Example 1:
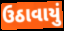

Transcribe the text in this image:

ઉઠાવાયું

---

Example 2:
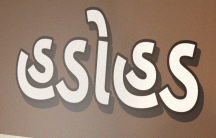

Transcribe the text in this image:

હડોહડ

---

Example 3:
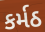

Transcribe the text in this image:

કર્મઠ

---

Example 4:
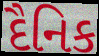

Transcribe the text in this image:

દૈનિક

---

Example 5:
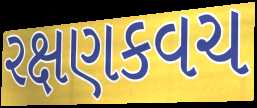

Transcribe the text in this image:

રક્ષણકવચ